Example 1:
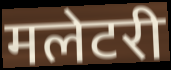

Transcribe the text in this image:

मलेटरी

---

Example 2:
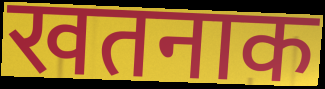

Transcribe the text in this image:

खतनाक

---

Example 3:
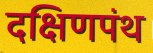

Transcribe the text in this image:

दक्षिणपंथ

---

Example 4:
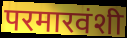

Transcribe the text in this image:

परमारवंशी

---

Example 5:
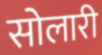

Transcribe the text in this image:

सोलारी